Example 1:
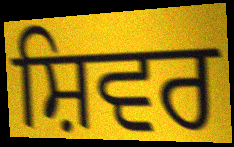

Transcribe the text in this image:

ਸ਼ਿਵਰ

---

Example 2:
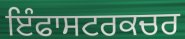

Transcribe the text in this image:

ਇੰਫਾਸਟਰਕਚਰ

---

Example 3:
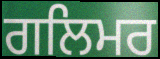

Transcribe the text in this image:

ਗਲਿਮਰ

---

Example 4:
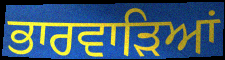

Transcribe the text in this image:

ਭਾਰਵਾੜਿਆਂ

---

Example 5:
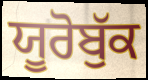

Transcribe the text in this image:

ਯੂਰੋਬੁੱਕ